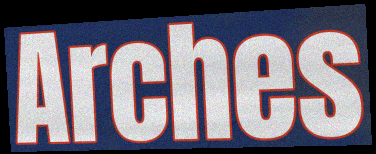
Arches